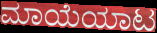
ಮಾಯೆಯಾಟ